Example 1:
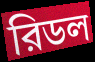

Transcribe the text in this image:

রিডল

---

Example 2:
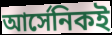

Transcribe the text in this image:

আর্সেনিকই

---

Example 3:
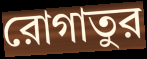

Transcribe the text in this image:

রোগাতুর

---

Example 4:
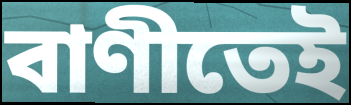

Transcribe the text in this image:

বাণীতেই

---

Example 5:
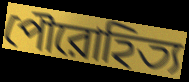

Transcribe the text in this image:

পৌরোহিত্য